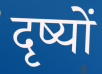
दृष्यों